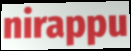
nirappu